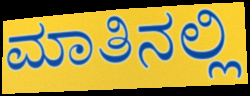
ಮಾತಿನಲ್ಲಿ